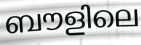
ബൗളിലെ